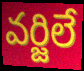
వర్జిలే